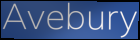
Avebury